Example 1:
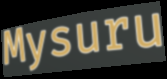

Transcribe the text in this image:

Mysuru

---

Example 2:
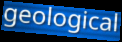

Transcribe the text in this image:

geological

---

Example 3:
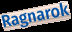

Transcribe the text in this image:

Ragnarok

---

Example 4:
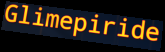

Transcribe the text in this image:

Glimepiride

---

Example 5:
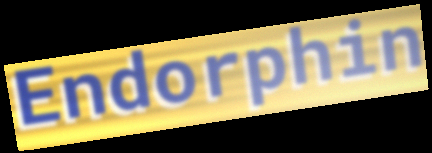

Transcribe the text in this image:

Endorphin